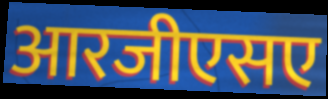
आरजीएसए